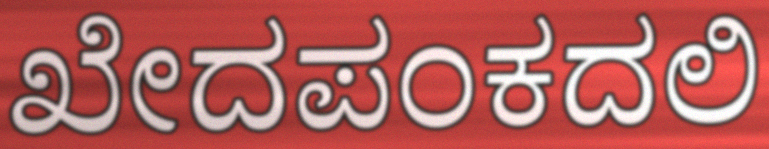
ಖೇದಪಂಕದಲಿ